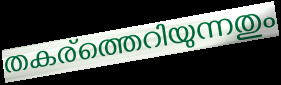
തകര്ത്തെറിയുന്നതും